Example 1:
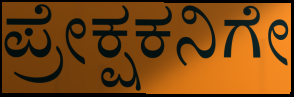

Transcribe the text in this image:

ಪ್ರೇಕ್ಷಕನಿಗೇ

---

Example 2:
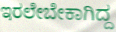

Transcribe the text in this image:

ಇರಲೇಬೇಕಾಗಿದ್ದ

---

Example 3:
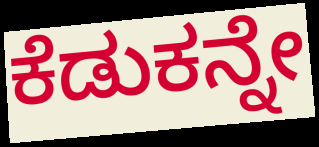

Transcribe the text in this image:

ಕೆಡುಕನ್ನೇ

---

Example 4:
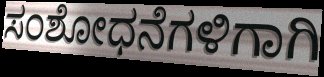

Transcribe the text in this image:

ಸಂಶೋಧನೆಗಳಿಗಾಗಿ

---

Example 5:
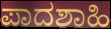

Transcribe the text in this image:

ಪಾದಶಾಹಿ